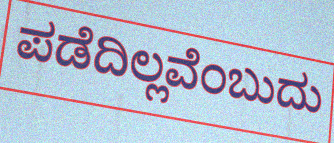
ಪಡೆದಿಲ್ಲವೆಂಬುದು